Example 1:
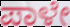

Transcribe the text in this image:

ಪಾಳೇ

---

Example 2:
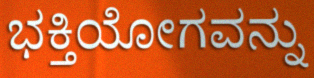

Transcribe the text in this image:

ಭಕ್ತಿಯೋಗವನ್ನು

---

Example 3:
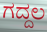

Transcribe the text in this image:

ಗದ್ದಲ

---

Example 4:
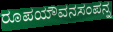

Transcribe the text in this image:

ರೂಪಯೌವನಸಂಪನ್ನ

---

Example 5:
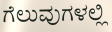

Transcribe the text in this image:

ಗೆಲುವುಗಳಲ್ಲಿ